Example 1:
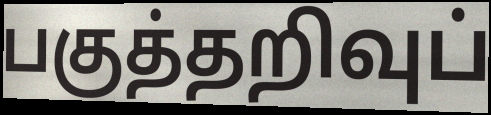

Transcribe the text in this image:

பகுத்தறிவுப்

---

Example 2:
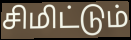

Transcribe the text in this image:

சிமிட்டும்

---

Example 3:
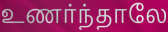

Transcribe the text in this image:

உணர்ந்தாலே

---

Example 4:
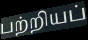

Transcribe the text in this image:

பற்றியப்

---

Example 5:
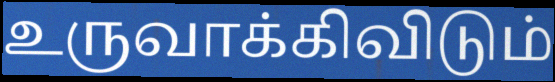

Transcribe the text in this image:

உருவாக்கிவிடும்